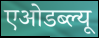
एओडब्ल्यू